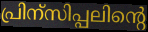
പ്രിന്സിപ്പലിന്റെ